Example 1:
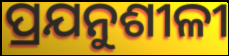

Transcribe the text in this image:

ପ୍ରଯନୁଶୀଳୀ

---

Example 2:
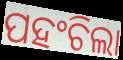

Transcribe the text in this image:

ପହଂଚିଲା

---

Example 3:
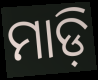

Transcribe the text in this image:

ମାଡ଼ି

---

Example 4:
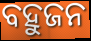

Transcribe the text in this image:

ବହୁଜନ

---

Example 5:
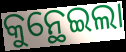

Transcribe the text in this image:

କୁନ୍ଥେଇଲା